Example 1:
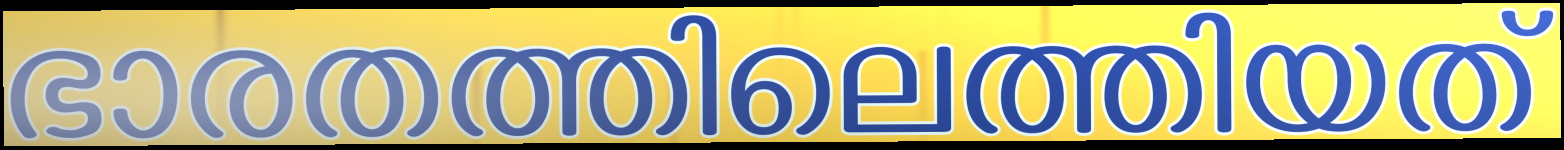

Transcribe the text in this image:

ഭാരതത്തിലെത്തിയത്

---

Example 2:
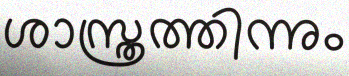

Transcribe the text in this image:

ശാസ്ത്രത്തിന്നും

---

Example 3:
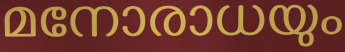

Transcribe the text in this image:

മനോരാധയും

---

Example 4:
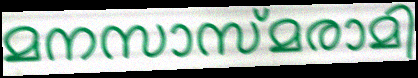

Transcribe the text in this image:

മനസാസ്മരാമി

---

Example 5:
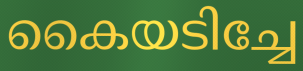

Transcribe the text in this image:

കൈയടിച്ചേ